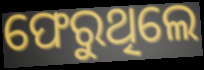
ଫେରୁଥିଲେ